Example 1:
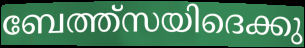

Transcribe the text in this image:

ബേത്ത്സയിദെക്കു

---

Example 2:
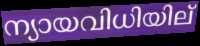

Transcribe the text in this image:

ന്യായവിധിയില്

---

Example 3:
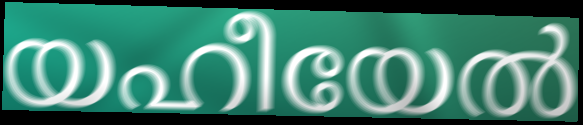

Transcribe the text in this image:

യഹീയേൽ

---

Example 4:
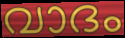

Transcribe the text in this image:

വാദം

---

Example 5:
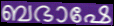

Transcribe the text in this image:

ബഭാഷേ